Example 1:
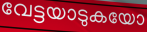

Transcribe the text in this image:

വേട്ടയാടുകയോ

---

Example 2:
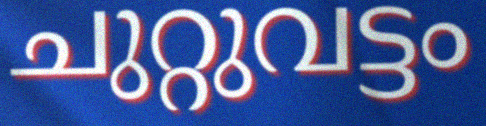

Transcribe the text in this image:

ചുറ്റുവട്ടം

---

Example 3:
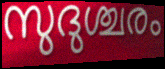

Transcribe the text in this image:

സുദുശ്ചരം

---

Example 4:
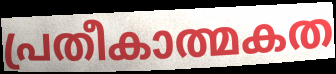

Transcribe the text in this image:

പ്രതീകാത്മകത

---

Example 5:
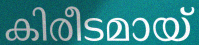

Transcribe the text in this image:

കിരീടമായ്